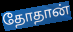
தோதான்